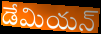
డేమియన్